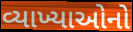
વ્યાખ્યાઓનો